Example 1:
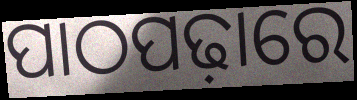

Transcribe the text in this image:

ପାଠପଢ଼ାରେ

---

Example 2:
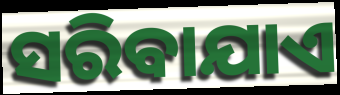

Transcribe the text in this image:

ସରିବାଯାଏ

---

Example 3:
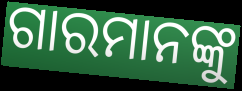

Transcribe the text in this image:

ଗାରମାନଙ୍କୁ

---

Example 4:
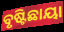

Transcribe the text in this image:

ବୃଷ୍ଟିଛାୟା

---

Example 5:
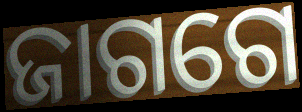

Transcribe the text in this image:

ଜାଗଗେ